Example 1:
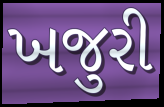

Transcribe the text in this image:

ખજુરી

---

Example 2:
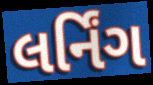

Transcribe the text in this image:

લર્નિંગ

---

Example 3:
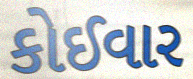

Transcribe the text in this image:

કોઈવાર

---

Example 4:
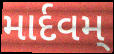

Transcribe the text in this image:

માર્દવમ્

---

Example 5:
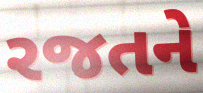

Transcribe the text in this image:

રજતને